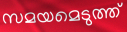
സമയമെടുത്ത്